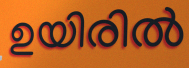
ഉയിരിൽ